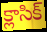
క్లాసిక్